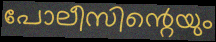
പോലീസിന്റെയും